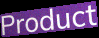
Product